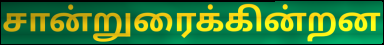
சான்றுரைக்கின்றன